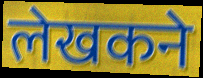
लेखकने